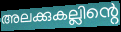
അലക്കുകല്ലിന്റെ